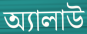
অ্যালাউ